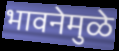
भावनेमुळे